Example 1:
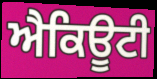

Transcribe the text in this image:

ਐਕਿਊਟੀ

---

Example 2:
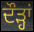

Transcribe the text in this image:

ਦੌੜ੍ਹਾਂ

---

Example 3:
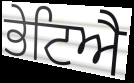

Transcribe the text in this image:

ਭੇਟਿਐ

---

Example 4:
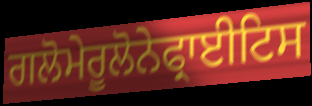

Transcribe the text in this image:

ਗਲੋਮੇਰੂਲੋਨੇਫ੍ਰਾਈਟਿਸ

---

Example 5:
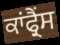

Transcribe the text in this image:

ਕਾਂਫ੍ਰੈਂਸ